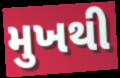
મુખથી